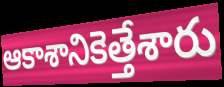
ఆకాశానికెత్తేశారు